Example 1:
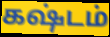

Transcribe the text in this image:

கஷ்டம்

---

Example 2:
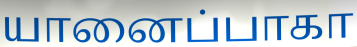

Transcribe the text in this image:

யானைப்பாகா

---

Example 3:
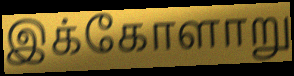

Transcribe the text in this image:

இக்கோளாறு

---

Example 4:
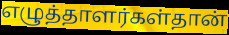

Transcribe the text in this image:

எழுத்தாளர்கள்தான்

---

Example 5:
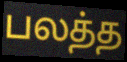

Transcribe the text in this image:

பலத்த